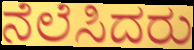
ನೆಲೆಸಿದರು